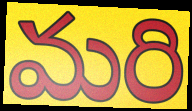
మరి